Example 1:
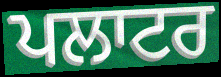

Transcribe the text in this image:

ਪਲਾਟਰ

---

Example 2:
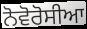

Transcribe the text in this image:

ਨੋਵੋਰੋਸੀਆ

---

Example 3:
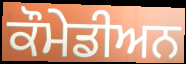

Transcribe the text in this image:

ਕੌਮੇਡੀਅਨ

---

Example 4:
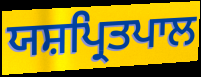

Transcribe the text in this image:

ਯਸ਼ਪ੍ਰਿਤਪਾਲ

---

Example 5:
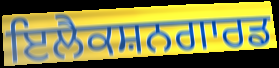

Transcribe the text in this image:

ਇਲੈਕਸ਼ਨਗਾਰਡ